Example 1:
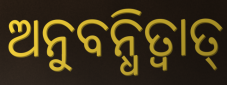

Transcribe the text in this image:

ଅନୁବନ୍ଧିତ୍ଵାତ୍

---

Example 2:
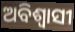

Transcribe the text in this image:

ଅବିଶ୍ଵାସୀ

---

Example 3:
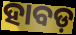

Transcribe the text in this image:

ହାବଡ଼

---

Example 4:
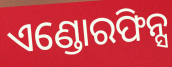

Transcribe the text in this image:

ଏଣ୍ଡୋରଫିନ୍ସ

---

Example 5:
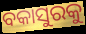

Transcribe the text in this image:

ବକାସୁରକୁ